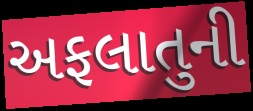
અફલાતુની